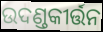
ଉଦଣ୍ଡକୀର୍ତ୍ତନ